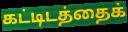
கட்டிடத்தைக்